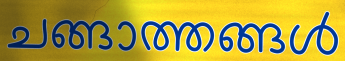
ചങ്ങാത്തങ്ങൾ